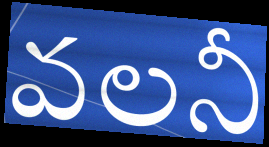
వలనీ